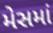
મેસમાં